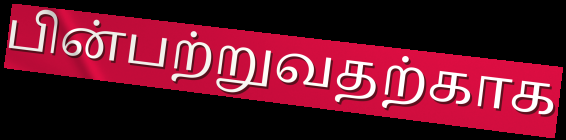
பின்பற்றுவதற்காக